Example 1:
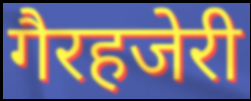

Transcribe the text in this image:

गैरहजेरी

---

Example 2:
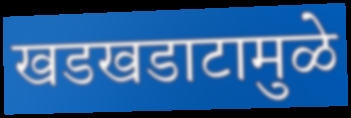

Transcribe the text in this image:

खडखडाटामुळे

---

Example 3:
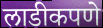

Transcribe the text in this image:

लाडीकपणे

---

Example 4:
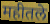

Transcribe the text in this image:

महीतले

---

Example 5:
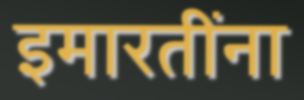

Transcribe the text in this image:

इमारतींना